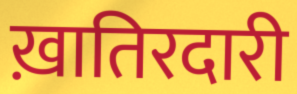
ख़ातिरदारी